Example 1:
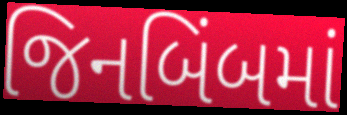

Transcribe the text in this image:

જિનબિંબમાં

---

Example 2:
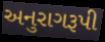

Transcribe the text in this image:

અનુરાગરૂપી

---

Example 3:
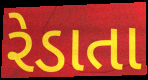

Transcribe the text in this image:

રેડાતા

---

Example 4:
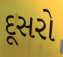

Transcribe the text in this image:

દૂસરો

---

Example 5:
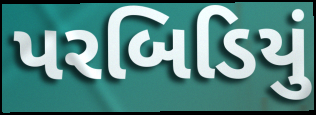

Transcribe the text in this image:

પરબિડિયું